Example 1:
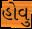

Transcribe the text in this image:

હોવુ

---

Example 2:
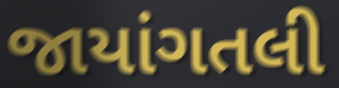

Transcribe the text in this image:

જાયાંગતલી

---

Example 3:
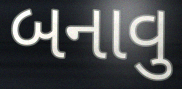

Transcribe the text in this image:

બનાવુ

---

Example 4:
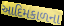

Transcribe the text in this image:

આદિમકાળના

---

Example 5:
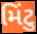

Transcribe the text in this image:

મિંટુ